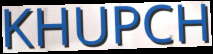
KHUPCH